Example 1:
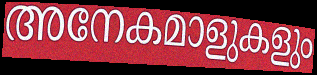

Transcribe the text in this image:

അനേകമാളുകളും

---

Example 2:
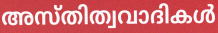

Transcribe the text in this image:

അസ്തിത്വവാദികൾ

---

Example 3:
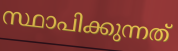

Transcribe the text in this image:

സ്ഥാപിക്കുന്നത്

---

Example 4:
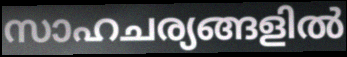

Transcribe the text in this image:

സാഹചര്യങ്ങളിൽ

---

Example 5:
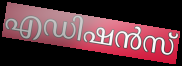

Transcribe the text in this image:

എഡിഷൻസ്